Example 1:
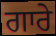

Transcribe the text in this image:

ਗਾਰੇ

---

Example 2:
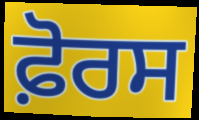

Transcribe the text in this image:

ਫ਼ੋਰਸ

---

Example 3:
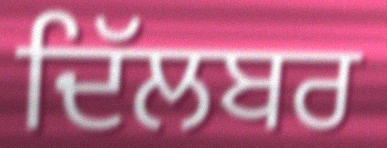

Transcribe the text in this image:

ਦਿੱਲਬਰ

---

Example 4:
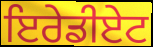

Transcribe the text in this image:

ਇਰੇਡੀਏਟ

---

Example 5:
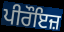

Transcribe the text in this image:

ਪੀਰੌਇਜ਼